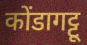
कोंडागट्टू